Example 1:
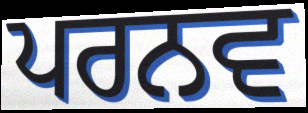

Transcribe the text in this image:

ਪਰਨਵ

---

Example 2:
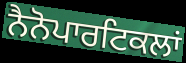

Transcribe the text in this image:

ਨੈਨੋਪਾਰਟਿਕਲਾਂ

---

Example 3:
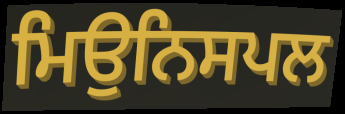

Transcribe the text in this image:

ਮਿਉਨਿਸਪਲ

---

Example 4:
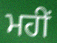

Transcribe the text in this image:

ਮਹੀਂ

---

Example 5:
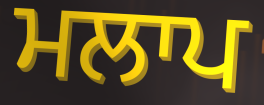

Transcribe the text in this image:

ਮਲਾਪ